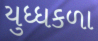
યુધ્ધકળા